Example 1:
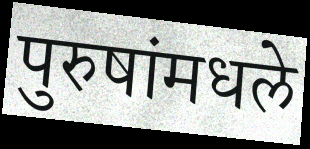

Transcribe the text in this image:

पुरुषांमधले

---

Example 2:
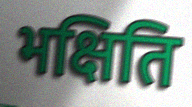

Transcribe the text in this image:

भक्षिति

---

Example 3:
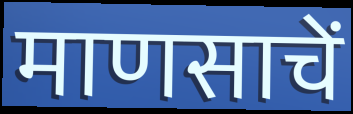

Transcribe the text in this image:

माणसाचें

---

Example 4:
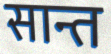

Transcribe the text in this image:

सान्त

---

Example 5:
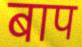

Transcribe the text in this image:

बाप